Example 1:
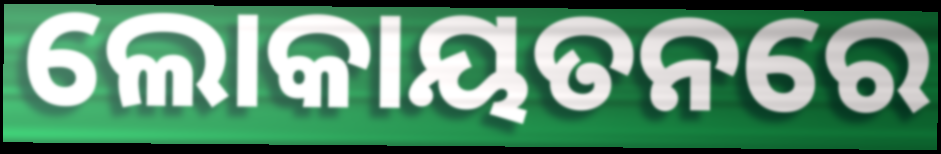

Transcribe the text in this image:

ଲୋକାୟତନରେ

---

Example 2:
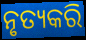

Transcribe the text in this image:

ନୃତ୍ୟକରି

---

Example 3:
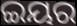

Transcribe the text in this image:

ଇୟର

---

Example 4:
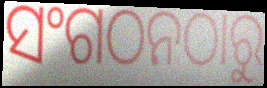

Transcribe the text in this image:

ସଂଗଠନଠାରୁ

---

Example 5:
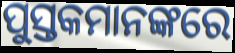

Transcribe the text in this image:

ପୁସ୍ତକମାନଙ୍କରେ